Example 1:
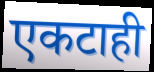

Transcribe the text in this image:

एकटाही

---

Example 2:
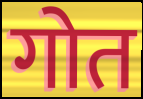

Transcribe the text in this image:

गोत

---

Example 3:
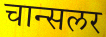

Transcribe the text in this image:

चान्सलर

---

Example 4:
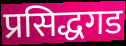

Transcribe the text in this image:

प्रसिद्धगड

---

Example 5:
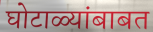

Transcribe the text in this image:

घोटाळ्यांबाबत